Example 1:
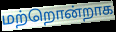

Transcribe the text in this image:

மற்றொன்றாக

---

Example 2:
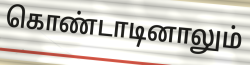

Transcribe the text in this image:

கொண்டாடினாலும்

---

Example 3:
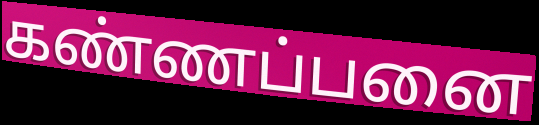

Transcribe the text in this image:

கண்ணப்பனை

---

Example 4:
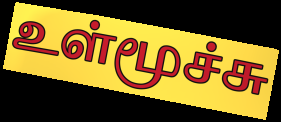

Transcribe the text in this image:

உள்மூச்சு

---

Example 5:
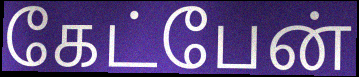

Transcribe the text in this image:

கேட்பேன்